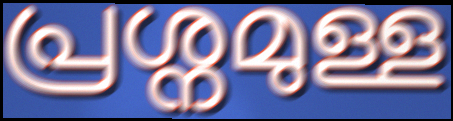
പ്രശ്നമുള്ള